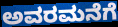
ಅವರಮನೆಗೆ